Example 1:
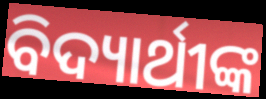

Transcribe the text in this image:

ବିଦ୍ୟାର୍ଥୀଙ୍କ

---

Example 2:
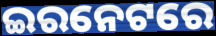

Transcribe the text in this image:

ଇରନେଟରେ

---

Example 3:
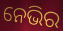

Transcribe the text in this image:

ନେଭିର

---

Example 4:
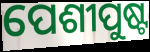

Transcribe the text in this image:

ପେଶୀପୁଷ୍ଟ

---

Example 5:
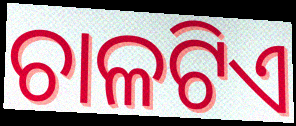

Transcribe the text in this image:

ଚାଳଟିଏ